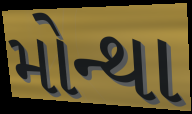
મોન્થા